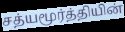
சத்யமூர்த்தியின்